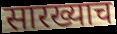
सारख्याच